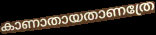
കാണാതായതാണത്രേ